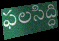
ఫలసిద్ధి